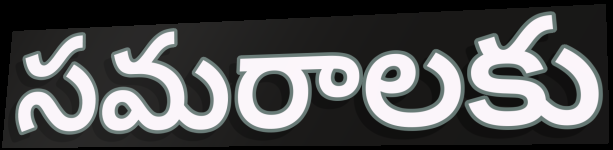
సమరాలకు